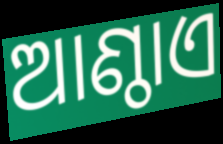
ଆଣ୍ଠାଏ